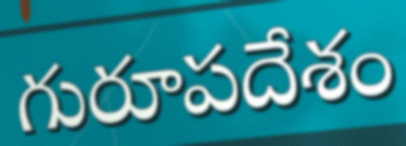
గురూపదేశం